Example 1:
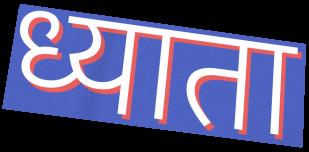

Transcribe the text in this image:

ध्याता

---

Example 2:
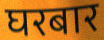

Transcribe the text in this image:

घरबार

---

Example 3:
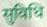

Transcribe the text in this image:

सुविधि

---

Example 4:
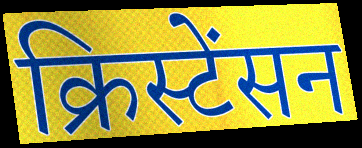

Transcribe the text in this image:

क्रिस्टेंसन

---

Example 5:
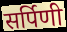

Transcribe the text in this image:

सर्पिणी